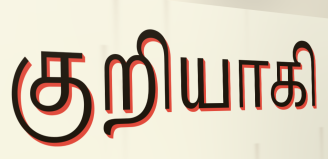
குறியாகி